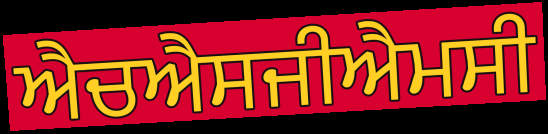
ਐਚਐਸਜੀਐਮਸੀ